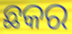
ଛକର